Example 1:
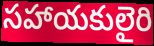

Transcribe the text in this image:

సహాయకులైరి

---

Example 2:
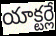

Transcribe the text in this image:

యాక్టర్లే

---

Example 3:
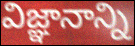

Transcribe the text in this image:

విజ్ఞానాన్ని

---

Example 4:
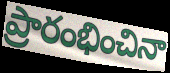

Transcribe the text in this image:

ప్రారంభించినా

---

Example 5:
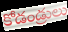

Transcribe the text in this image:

కోడండ్రులు